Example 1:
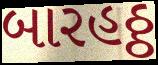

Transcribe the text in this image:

બારહઠ્ઠ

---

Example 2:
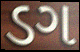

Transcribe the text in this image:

ડગ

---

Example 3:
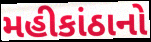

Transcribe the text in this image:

મહીકાંઠાનો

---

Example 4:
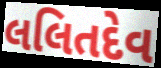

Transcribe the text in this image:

લલિતદેવ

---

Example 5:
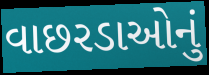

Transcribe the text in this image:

વાછરડાઓનું